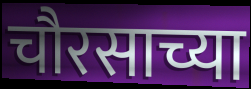
चौरसाच्या